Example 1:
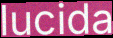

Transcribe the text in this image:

lucida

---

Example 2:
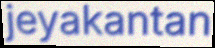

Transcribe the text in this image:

jeyakantan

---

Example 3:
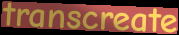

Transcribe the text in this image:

transcreate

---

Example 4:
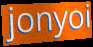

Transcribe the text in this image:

jonyoi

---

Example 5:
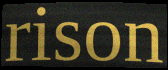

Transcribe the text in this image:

rison